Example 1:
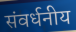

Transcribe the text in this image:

संवर्धनीय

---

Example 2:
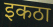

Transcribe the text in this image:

इकठा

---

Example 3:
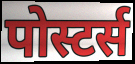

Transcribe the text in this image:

पोस्टर्स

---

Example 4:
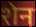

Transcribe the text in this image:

शेन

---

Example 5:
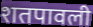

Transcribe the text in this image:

शतपावली